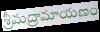
శ్రీమద్రామాయణం